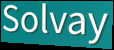
Solvay